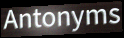
Antonyms